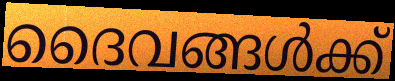
ദൈവങ്ങൾക്ക്